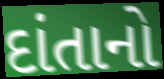
દાંતાનો